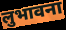
लुभावना